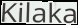
Kilaka